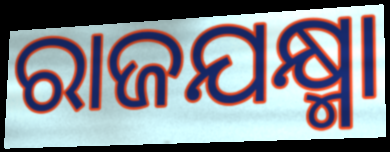
ରାଜଯକ୍ଷ୍ମା